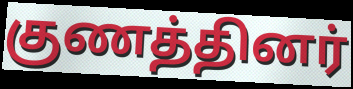
குணத்தினர்